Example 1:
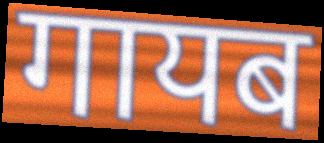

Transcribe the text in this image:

गायब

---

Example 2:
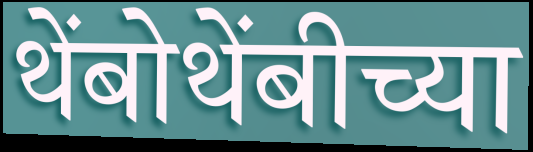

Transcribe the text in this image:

थेंबोथेंबीच्या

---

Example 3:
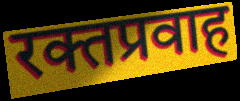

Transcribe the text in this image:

रक्तप्रवाह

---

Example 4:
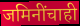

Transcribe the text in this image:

जमिनींचाही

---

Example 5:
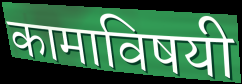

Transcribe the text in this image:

कामाविषयी